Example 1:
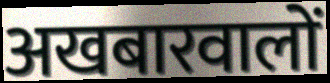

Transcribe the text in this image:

अखबारवालों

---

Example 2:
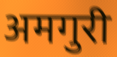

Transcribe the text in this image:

अमगुरी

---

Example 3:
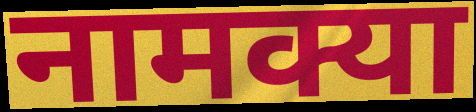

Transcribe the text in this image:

नामक्या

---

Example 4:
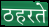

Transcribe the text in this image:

ठहरते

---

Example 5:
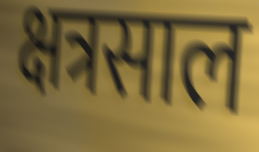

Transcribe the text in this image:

क्षत्रसाल